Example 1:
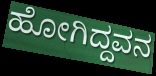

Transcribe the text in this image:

ಹೋಗಿದ್ದವನ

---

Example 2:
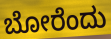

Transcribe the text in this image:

ಬೋರೆಂದು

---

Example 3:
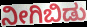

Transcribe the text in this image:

ನೀಗಿಬಿಡು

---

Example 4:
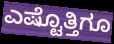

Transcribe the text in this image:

ಎಷ್ಟೊತ್ತಿಗೂ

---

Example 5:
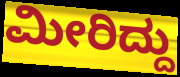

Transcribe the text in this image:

ಮೀರಿದ್ದು